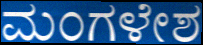
ಮಂಗಳೇಶ